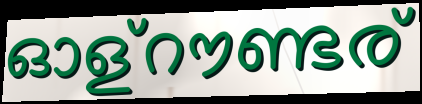
ഓള്റൗണ്ടര്